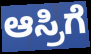
ಆಸ್ರಿಗೆ